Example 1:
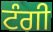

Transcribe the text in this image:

ਟੰਗੀ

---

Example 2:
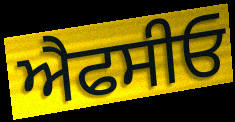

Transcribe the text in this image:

ਐਫਸੀਓ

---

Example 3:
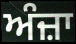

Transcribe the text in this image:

ਅੰਜ਼ਾ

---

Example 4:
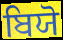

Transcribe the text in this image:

ਬਿਯੋ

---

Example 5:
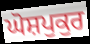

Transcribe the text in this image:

ਘੋਸ਼ਪੁਕੁਰ